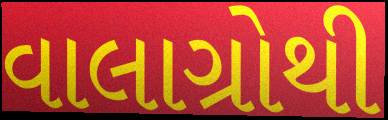
વાલાગ્રોથી